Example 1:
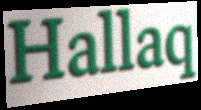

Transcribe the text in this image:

Hallaq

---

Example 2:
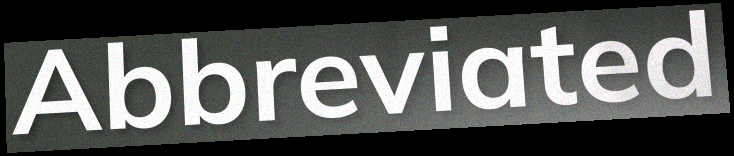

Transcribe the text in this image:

Abbreviated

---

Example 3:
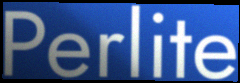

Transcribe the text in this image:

Perlite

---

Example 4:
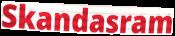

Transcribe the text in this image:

Skandasram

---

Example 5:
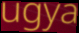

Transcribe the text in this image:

ugya